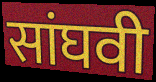
सांघवी